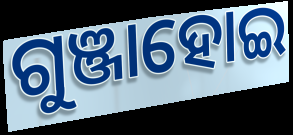
ଗୁଞ୍ଜାହୋଇ